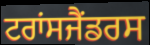
ਟਰਾਂਸਜੈਂਡਰਸ